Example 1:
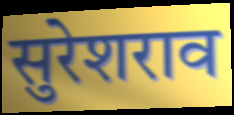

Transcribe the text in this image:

सुरेशराव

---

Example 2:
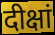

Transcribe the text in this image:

दीक्षां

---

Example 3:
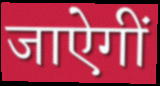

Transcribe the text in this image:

जाऐगीं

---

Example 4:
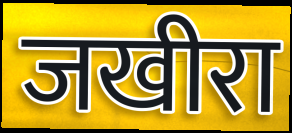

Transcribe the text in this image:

जखीरा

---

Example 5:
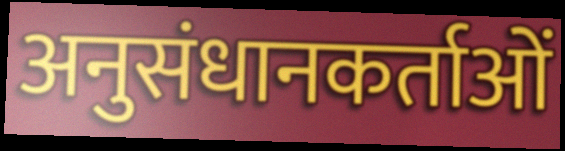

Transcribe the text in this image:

अनुसंधानकर्ताओं